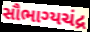
સૌભાગ્યચંદ્ર